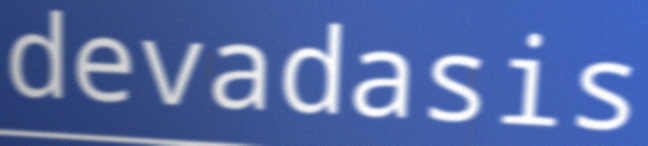
devadasis